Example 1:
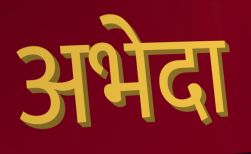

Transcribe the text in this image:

अभेदा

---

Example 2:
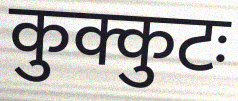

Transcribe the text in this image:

कुक्कुटः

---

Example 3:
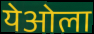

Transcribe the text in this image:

येओला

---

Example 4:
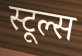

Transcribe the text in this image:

स्टूल्स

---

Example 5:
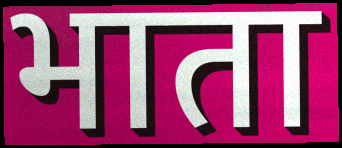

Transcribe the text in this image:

भाता